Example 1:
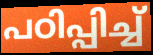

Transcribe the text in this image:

പഠിപ്പിച്ച്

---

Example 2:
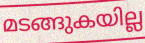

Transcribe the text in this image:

മടങ്ങുകയില്ല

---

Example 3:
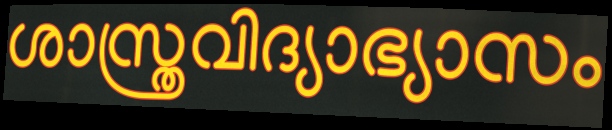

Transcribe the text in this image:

ശാസ്ത്രവിദ്യാഭ്യാസം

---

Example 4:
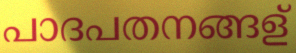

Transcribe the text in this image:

പാദപതനങ്ങള്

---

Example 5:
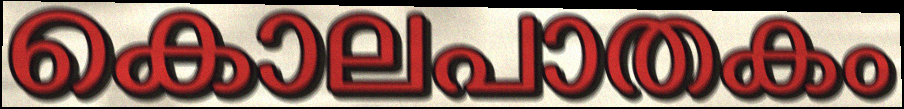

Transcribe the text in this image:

കൊലപാതകം